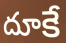
దూకే